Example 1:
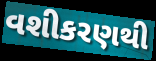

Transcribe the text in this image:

વશીકરણથી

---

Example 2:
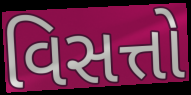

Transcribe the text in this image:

વિસત્તો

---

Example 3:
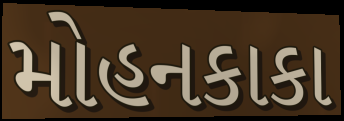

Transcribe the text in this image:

મોહનકાકા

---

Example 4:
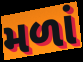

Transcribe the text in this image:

મળાં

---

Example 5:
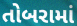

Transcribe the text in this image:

તોબરામાં